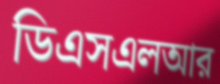
ডিএসএলআর